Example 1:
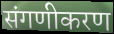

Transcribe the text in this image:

संगणीकरण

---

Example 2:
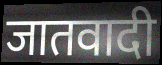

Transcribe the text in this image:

जातवादी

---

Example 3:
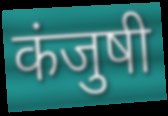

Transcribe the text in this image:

कंजुषी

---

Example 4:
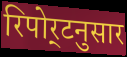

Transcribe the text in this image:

रिपोर्टनुसार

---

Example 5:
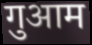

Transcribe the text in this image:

गुआम